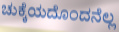
ಚುಕ್ಕೆಯದೊಂದನೆಲ್ಲ